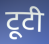
टूटी